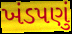
ખંડપણું